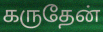
கருதேன்